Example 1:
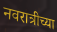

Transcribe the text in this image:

नवरात्रीच्या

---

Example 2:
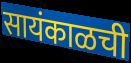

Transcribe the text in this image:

सायंकाळची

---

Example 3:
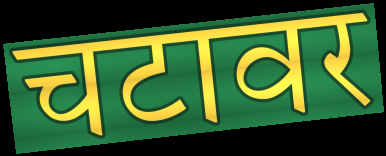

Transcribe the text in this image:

चटावर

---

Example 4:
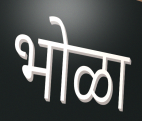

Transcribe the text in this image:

भोळा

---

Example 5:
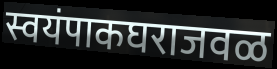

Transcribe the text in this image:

स्वयंपाकघराजवळ